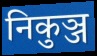
निकुञ्ज